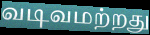
வடிவமற்றது